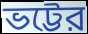
ভট্টের